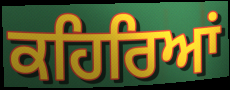
ਕਹਿਰਿਆਂ